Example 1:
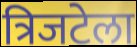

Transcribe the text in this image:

त्रिजटेला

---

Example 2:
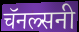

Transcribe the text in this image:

चॅनल्सनी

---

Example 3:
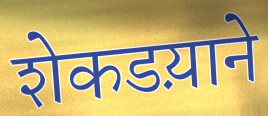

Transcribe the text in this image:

शेकडय़ाने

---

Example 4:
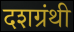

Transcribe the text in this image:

दशग्रंथी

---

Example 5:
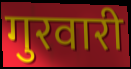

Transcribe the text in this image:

गुरवारी